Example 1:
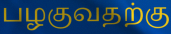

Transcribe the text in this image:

பழகுவதற்கு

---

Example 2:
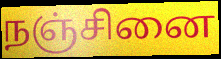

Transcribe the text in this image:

நஞ்சினை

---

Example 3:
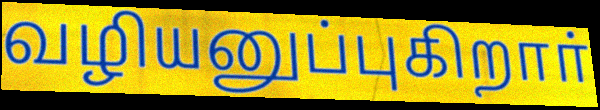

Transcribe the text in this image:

வழியனுப்புகிறார்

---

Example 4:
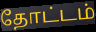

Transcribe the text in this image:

தோட்டம்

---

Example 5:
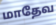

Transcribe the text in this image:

மாதேவ